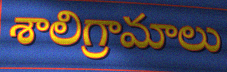
శాలిగ్రామాలు